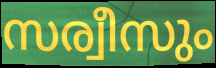
സര്വീസും